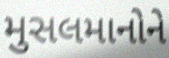
મુસલમાનોને